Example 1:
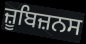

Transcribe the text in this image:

ਜ਼ੂਬਿਜ਼ਨਸ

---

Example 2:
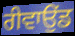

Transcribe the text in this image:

ਰੀਵਾਉਂਡ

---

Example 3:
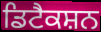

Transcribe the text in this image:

ਡਿਟੈਕਸ਼ਨ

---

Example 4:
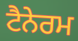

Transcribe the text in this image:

ਟੈਨੇਰਮ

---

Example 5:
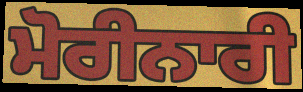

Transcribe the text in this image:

ਮੋਰੀਨਾਰੀ